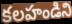
కలహండిని